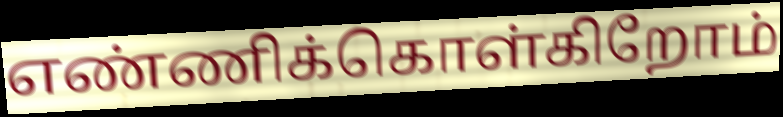
எண்ணிக்கொள்கிறோம்